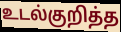
உடல்குறித்த